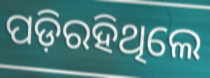
ପଡ଼ିରହିଥିଲେ